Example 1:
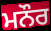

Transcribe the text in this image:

ਮਨੌਰ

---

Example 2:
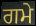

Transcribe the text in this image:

ਗਮੇ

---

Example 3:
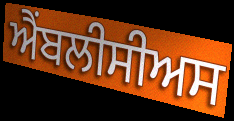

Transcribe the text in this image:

ਐਂਬਲੀਸੀਅਸ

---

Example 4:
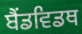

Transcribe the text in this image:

ਬੈਂਡਵਿਡਥ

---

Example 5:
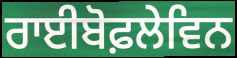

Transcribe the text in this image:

ਰਾਈਬੋਫ਼ਲੇਵਿਨ